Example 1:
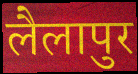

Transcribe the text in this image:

लैलापुर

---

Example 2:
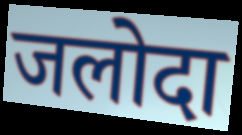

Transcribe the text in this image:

जलोदा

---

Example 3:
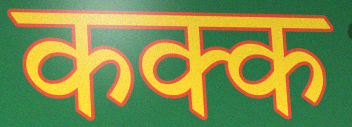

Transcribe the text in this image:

कक्क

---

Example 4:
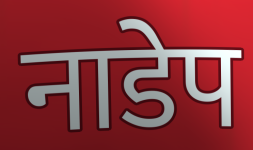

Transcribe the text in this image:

नाडेप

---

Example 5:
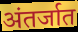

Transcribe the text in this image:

अंतर्जात